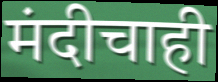
मंदीचाही